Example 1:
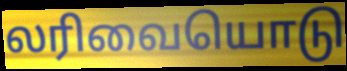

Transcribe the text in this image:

லரிவையொடு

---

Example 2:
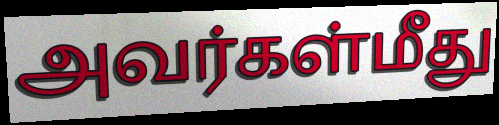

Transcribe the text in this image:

அவர்கள்மீது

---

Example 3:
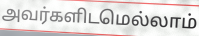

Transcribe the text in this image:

அவர்களிடமெல்லாம்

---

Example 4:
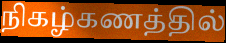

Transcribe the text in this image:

நிகழ்கணத்தில்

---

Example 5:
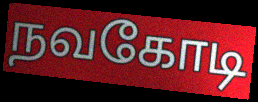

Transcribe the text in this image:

நவகோடி